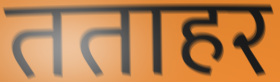
तताहर